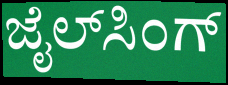
ಜೈಲ್‌ಸಿಂಗ್